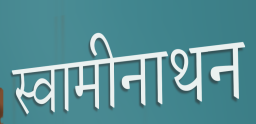
स्वामीनाथन